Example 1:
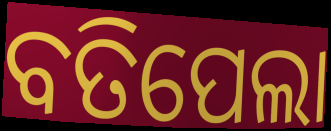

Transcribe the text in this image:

ବତିପେଲା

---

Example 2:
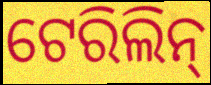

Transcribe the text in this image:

ଟେରିଲିନ୍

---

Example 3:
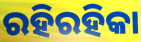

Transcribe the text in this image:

ରହିରହିକା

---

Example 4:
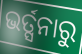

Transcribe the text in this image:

ଭର୍ତ୍ସନାରୁ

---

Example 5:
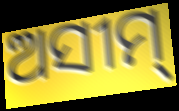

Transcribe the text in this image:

ଅସୀମ୍